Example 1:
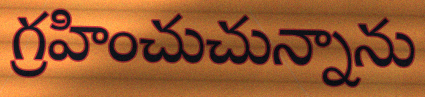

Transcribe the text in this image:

గ్రహించుచున్నాను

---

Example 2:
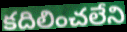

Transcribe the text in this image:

కదిలించలేని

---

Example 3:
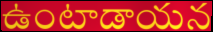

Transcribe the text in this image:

ఉంటాడాయన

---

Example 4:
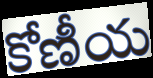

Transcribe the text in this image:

కోణీయ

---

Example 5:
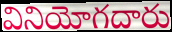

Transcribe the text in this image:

వినియోగదారు